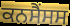
ਕਨਸੈਂਸਸ